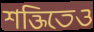
শক্তিতেও